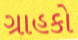
ગ્રાહકો